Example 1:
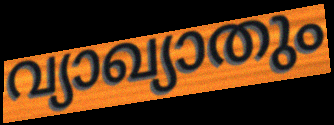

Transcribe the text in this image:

വ്യാഖ്യാതും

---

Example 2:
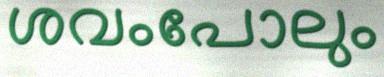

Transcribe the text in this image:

ശവംപോലും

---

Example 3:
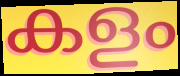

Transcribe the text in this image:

കളം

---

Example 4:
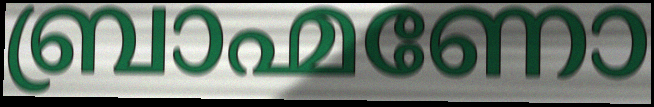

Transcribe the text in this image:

ബ്രാഹ്മണോ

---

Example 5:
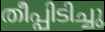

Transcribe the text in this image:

തീപ്പിടിച്ചു